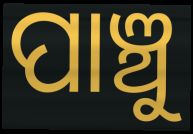
ପାଞ୍ଚୁ